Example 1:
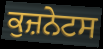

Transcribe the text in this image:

ਕੁਜ਼ਨੇਟਸ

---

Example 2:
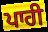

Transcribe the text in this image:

ਪਾਹੀ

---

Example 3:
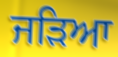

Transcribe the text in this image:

ਜੜਿਆ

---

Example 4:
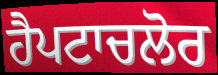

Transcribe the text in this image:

ਹੈਪਟਾਚਲੋਰ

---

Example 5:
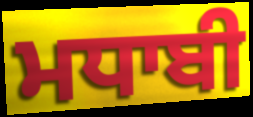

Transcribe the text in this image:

ਮਧਾਬੀ